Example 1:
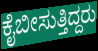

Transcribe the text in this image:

ಕೈಬೀಸುತ್ತಿದ್ದರು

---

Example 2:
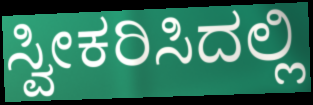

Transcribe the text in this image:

ಸ್ವೀಕರಿಸಿದಲ್ಲಿ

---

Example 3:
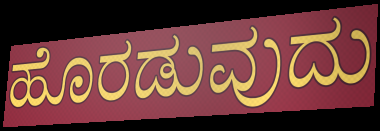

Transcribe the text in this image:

ಹೊರಡುವುದು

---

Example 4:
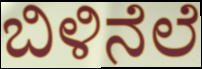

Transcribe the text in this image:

ಬಿಳಿನೆಲೆ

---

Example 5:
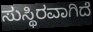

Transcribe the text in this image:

ಸುಸ್ಥಿರವಾಗಿದೆ